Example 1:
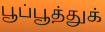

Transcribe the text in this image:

பூப்பூத்துக்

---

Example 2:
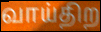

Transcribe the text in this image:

வாய்திற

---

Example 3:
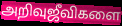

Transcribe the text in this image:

அறிவுஜீவிகளை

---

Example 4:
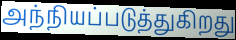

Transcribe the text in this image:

அந்நியப்படுத்துகிறது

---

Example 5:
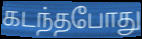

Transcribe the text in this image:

கடந்தபோது